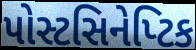
પોસ્ટસિનેપ્ટિક